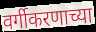
वर्गीकरणाच्या